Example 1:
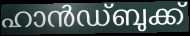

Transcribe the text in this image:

ഹാൻഡ്ബുക്ക്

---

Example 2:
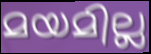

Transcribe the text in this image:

മയമില്ല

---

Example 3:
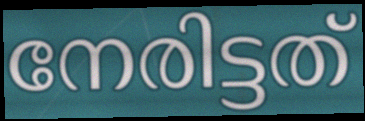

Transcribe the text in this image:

നേരിട്ടത്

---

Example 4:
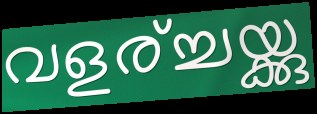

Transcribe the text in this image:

വളര്ച്ചയ്ക്കു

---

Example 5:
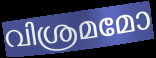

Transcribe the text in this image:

വിശ്രമമോ